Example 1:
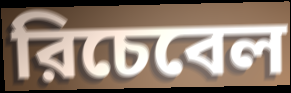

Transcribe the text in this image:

রিচেবেল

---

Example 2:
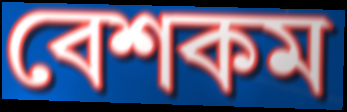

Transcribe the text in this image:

বেশকম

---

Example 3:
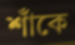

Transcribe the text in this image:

শাঁকে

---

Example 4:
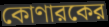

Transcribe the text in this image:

কোণারকের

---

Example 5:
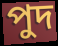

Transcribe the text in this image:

পুদ